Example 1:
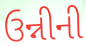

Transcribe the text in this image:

ઉન્નીની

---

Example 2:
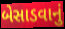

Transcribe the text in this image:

બેસાડવાનું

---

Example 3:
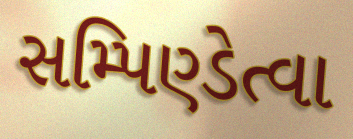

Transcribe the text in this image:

સમ્પિણ્ડેત્વા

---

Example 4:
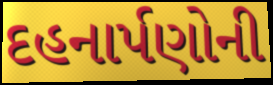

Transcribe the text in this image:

દહનાર્પણોની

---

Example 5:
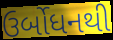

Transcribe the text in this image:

ઉર્બોધનથી